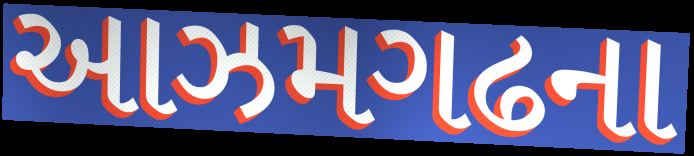
આઝમગઢના